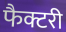
फैक्टरी